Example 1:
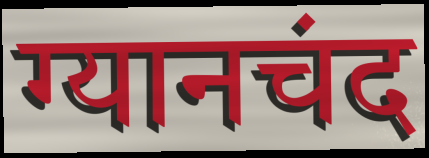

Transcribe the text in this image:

ग्यानचंद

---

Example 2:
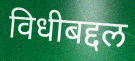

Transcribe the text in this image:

विधीबद्दल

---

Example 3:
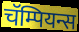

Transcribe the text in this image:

चॅम्पियन्स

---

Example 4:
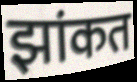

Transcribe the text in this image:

झांकत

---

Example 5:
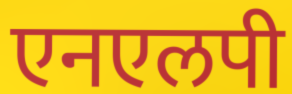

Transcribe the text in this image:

एनएलपी